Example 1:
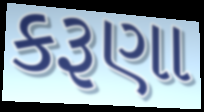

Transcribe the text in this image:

કરૂણા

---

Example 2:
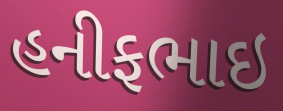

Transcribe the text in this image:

હનીફભાઇ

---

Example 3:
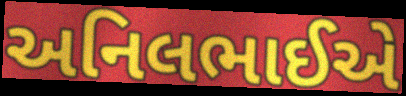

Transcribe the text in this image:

અનિલભાઈએ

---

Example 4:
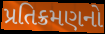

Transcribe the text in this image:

પ્રતિક્રમણનો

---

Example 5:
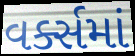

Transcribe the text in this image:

વર્ક્સમાં